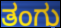
ತಂಗು